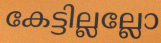
കേട്ടില്ലല്ലോ